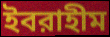
ইবরাহীম